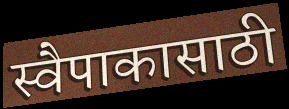
स्वैपाकासाठी